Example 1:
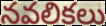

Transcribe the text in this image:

నవలికలు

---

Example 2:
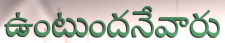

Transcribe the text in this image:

ఉంటుందనేవారు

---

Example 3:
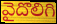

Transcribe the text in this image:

వైదొలిగి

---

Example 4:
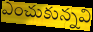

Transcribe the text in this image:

ఎంచుకున్నవి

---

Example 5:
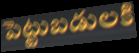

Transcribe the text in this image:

పెట్టుబడులకి